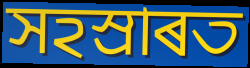
সহস্ৰাৰত